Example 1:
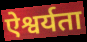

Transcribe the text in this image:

ऐश्वर्यता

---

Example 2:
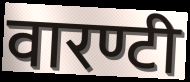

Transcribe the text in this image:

वारण्टी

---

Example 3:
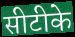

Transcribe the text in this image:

सीटीके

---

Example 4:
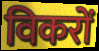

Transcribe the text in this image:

विकरों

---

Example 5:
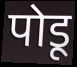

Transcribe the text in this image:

पोडू